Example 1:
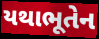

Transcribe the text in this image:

યથાભૂતેન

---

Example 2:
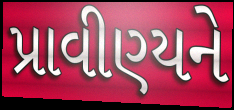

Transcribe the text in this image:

પ્રાવીણ્યને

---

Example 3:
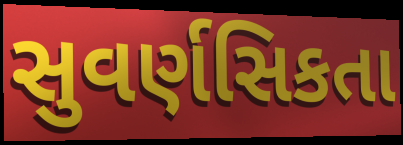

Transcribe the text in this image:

સુવર્ણસિકતા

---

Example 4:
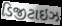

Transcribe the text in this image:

ડિજીટાઇઝ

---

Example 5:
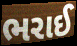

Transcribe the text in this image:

ભરાઈ